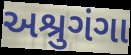
અશ્રુગંગા